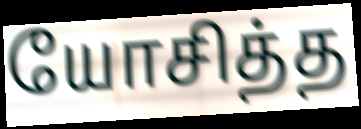
யோசித்த